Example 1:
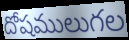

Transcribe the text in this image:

దోషములుగల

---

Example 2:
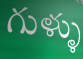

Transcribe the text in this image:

గుళ్ళు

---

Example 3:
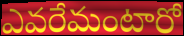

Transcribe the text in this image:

ఎవరేమంటారో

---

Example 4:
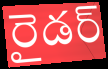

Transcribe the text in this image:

రైడర్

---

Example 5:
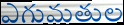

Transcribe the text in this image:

ఎగుమతుల